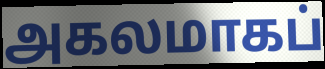
அகலமாகப்